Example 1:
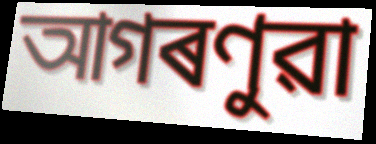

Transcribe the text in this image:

আগৰণুৱা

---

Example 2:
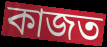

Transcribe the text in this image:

কাজত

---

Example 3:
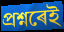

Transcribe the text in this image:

প্ৰশ্নৰেই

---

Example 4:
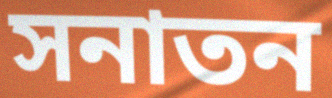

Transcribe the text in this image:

সনাতন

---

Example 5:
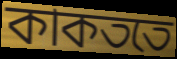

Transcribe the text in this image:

কাকততে